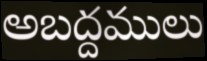
అబద్దములు